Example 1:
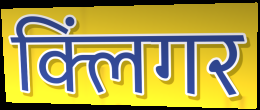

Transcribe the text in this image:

क्लिंगर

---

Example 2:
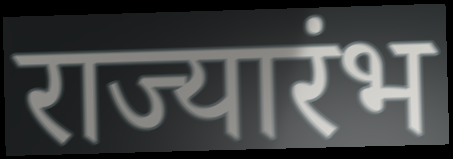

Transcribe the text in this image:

राज्यारंभ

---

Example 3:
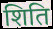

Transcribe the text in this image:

शिति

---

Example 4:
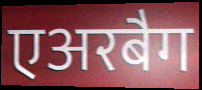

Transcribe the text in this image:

एअरबैग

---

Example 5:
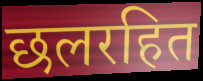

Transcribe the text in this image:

छलरहित